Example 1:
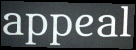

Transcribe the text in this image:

appeal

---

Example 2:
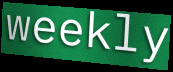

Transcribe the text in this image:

weekly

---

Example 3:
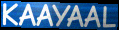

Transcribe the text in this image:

KAAYAAL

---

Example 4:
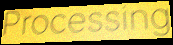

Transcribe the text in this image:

Processing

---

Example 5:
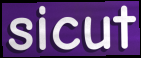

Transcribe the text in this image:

sicut